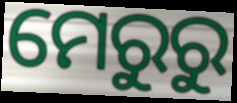
ମେରୁରୁ